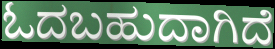
ಓದಬಹುದಾಗಿದೆ